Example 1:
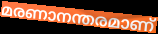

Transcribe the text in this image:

മരണാനന്തരമാണ്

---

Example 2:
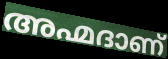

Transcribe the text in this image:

അഹ്മദാണ്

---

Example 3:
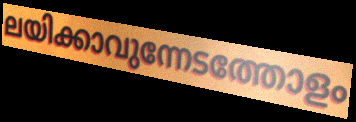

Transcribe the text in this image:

ലയിക്കാവുന്നേടത്തോളം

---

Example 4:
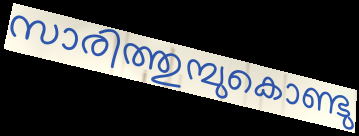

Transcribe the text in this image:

സാരിത്തുമ്പുകൊണ്ടു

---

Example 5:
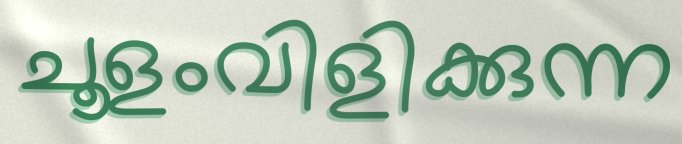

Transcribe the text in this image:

ചൂളംവിളിക്കുന്ന